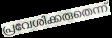
പ്രവേശിക്കരുതെന്ന്